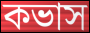
কভাস